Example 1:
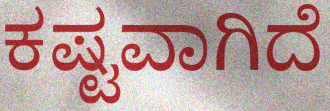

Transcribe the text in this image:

ಕಷ್ಟವಾಗಿದೆ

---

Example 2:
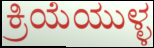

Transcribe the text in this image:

ಕ್ರಿಯೆಯುಳ್ಳ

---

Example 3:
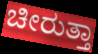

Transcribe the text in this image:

ಚೀರುತ್ತಾ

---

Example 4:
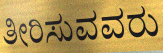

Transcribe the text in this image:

ತೀರಿಸುವವರು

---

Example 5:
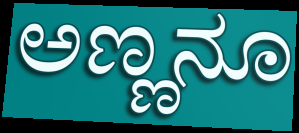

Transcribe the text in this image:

ಅಣ್ಣನೂ